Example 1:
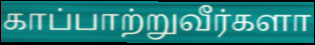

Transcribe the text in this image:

காப்பாற்றுவீர்களா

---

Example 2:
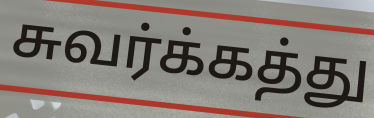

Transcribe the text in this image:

சுவர்க்கத்து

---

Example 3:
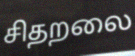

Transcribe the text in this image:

சிதறலை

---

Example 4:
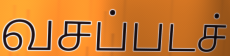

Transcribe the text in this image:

வசப்படச்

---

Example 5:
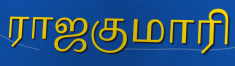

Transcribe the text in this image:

ராஜகுமாரி